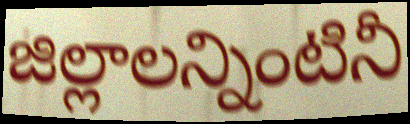
జిల్లాలన్నింటినీ